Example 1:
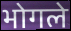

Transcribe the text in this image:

भोगले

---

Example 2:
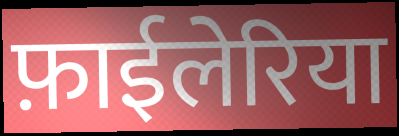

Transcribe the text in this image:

फ़ाईलेरिया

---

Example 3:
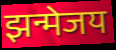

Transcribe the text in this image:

झन्मेजय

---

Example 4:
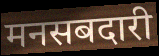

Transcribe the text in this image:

मनसबदारी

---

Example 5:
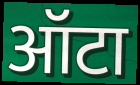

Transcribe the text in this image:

ऑटा